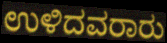
ಉಳಿದವರಾರು